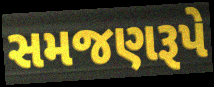
સમજણરૂપે